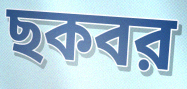
ছকবর